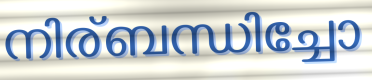
നിര്ബന്ധിച്ചോ